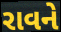
રાવને